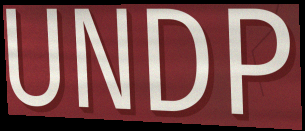
UNDP